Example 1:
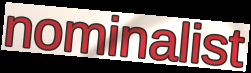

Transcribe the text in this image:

nominalist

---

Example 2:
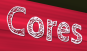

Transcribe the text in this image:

Cores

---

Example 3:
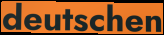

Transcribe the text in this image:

deutschen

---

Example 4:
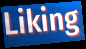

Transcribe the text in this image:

Liking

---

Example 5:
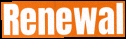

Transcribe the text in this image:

Renewal